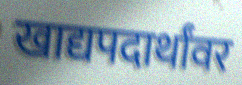
खाद्यपदार्थांवर